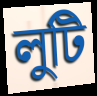
লুটি